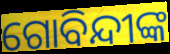
ଗୋବିନ୍ଦୀଙ୍କ